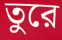
তুরে